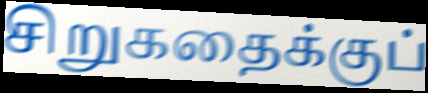
சிறுகதைக்குப்